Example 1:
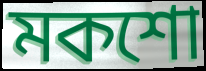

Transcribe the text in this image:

মকশো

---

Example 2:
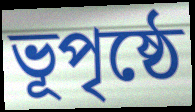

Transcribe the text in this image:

ভূপৃষ্ঠে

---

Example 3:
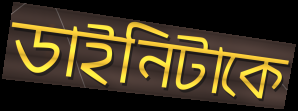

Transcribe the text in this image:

ডাইনিটাকে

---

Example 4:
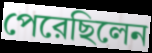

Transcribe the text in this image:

পেরেছিলেন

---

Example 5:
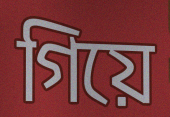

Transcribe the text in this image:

গিয়ে